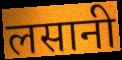
लसानी